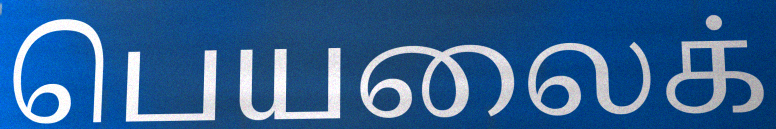
பெயலைக்